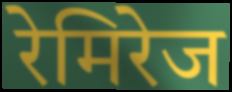
रेमिरेज